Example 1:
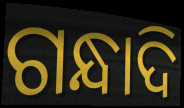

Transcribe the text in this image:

ଗନ୍ଧାଦି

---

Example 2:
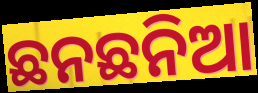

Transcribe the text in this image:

ଛନଛନିଆ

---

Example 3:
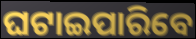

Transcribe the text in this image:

ଘଟାଇପାରିବେ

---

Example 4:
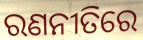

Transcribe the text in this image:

ରଣନୀତିରେ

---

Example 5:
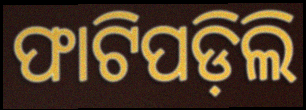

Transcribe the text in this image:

ଫାଟିପଡ଼ିଲି